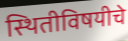
स्थितीविषयीचे